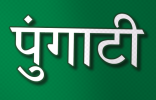
पुंगाटी